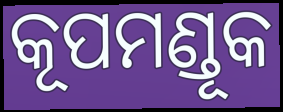
କୂପମଣ୍ଡୂକ